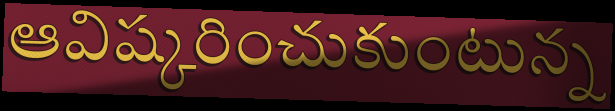
ఆవిష్కరించుకుంటున్న